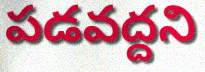
పడవద్దని